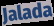
Jalada